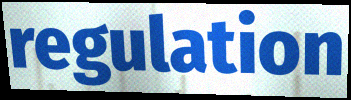
regulation